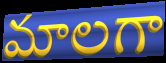
మాలగా